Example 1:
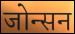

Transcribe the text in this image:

जोन्सन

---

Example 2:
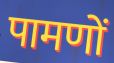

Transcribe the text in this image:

पामणों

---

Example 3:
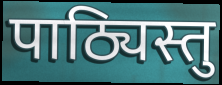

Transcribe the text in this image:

पाठ्यिस्तु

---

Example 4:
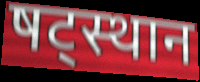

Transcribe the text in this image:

षट्स्थान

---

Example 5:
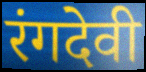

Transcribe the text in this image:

रंगदेवी